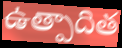
ఉత్పాదిత